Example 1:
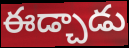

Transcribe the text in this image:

ఈడ్చాడు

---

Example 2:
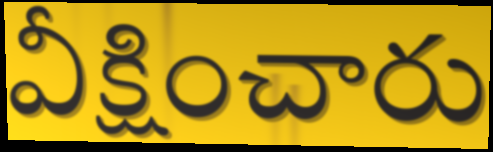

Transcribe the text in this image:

వీక్షించారు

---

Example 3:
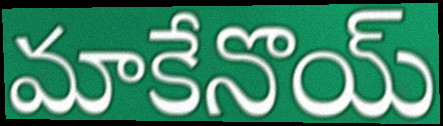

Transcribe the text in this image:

మాకేనొయ్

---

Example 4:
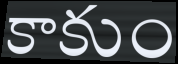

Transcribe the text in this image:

కాకుం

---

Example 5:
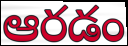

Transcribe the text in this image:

ఆరడం